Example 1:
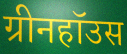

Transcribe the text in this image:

ग्रीनहॉउस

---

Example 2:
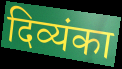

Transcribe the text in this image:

दिव्यंका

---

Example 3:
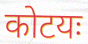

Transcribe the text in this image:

कोटयः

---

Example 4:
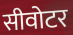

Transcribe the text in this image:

सीवोटर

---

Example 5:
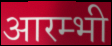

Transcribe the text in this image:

आरम्भी